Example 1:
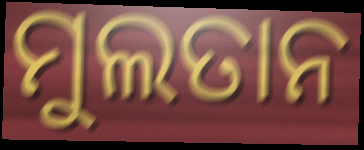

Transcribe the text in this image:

ମୁଲତାନ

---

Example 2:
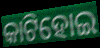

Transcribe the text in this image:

କାଟିହୋଇ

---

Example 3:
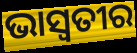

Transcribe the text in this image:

ଭାସ୍ୱତୀର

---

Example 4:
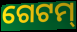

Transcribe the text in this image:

ଗେଟମ୍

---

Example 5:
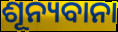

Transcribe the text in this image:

ଶୂନ୍ୟବାନା